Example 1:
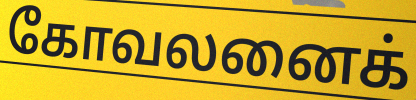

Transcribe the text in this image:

கோவலனைக்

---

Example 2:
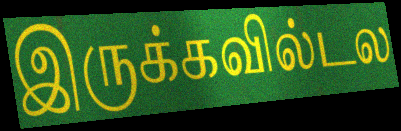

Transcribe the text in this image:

இருக்கவில்டல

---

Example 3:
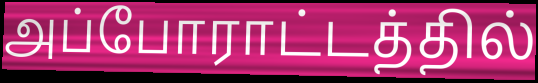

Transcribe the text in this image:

அப்போராட்டத்தில்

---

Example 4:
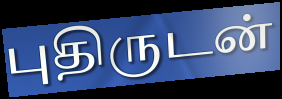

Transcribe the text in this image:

புதிருடன்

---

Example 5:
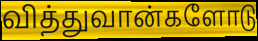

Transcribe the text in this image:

வித்துவான்களோடு